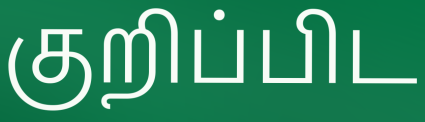
குறிப்பிட